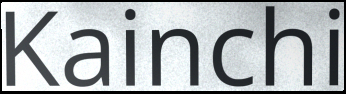
Kainchi